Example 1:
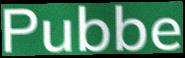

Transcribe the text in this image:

Pubbe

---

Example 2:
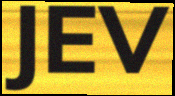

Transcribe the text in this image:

JEV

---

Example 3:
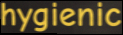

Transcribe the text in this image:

hygienic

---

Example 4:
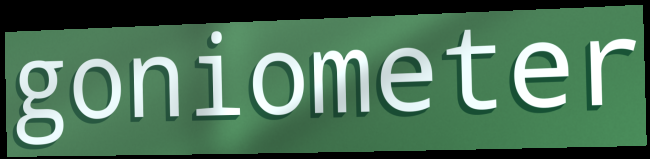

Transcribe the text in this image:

goniometer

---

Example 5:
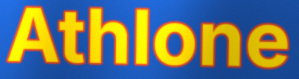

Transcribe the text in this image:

Athlone